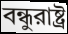
বন্ধুরাষ্ট্র